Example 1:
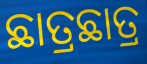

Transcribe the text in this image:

ଛାତ୍ରଛାତ୍ର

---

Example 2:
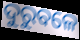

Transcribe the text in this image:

ଦୁରୁବଳେ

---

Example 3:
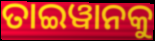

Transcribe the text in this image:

ତାଇୱାନକୁ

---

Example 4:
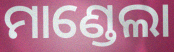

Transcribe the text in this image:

ମାଣ୍ଡେଲା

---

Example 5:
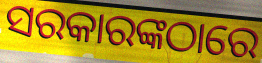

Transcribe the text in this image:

ସରକାରଙ୍କଠାରେ